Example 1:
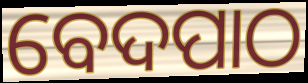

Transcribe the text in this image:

ବେଦପାଠ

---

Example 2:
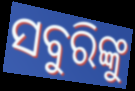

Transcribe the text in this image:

ସବୁରିଙ୍କୁ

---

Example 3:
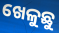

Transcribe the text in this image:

ଖେଳୁଛୁ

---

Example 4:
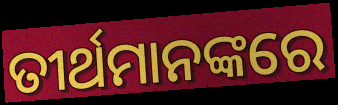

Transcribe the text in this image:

ତୀର୍ଥମାନଙ୍କରେ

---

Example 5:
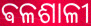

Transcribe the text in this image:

ଵଳଶାଳୀ